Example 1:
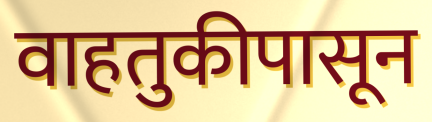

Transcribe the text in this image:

वाहतुकीपासून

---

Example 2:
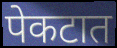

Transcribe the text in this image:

पेकटात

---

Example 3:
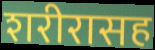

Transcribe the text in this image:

शरीरासह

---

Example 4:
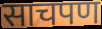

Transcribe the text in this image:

साचपण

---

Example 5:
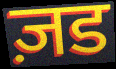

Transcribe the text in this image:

ज़ड